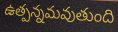
ఉత్పన్నమవుతుంది